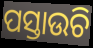
ପସ୍ତାଉଚି